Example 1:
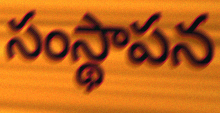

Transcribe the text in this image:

సంస్థాపన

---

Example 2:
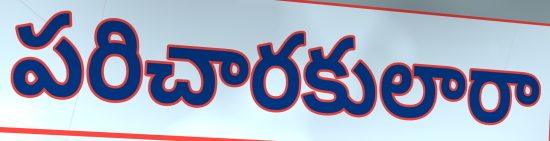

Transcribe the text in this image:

పరిచారకులారా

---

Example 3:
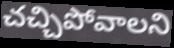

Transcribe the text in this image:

చచ్చిపోవాలని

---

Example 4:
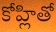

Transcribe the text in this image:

కోహ్లితో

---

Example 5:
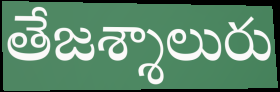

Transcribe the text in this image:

తేజశ్శాలురు